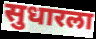
सुधारला